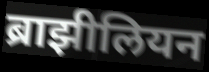
ब्राझीलियन